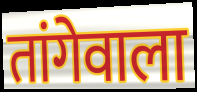
तांगेवाला